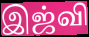
இஜ்வி